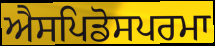
ਐਸਪਿਡੋਸਪਰਮਾ